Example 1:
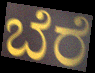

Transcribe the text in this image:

ಬೆರೆ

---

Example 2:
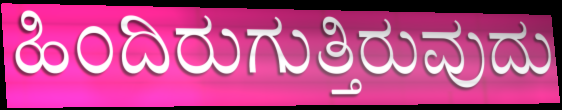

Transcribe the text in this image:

ಹಿಂದಿರುಗುತ್ತಿರುವುದು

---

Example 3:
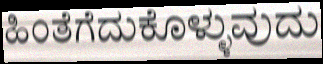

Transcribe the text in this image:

ಹಿಂತೆಗೆದುಕೊಳ್ಳುವುದು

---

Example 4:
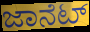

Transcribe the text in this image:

ಜಾನೆಟ್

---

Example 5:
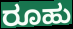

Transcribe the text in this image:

ರೂಹು